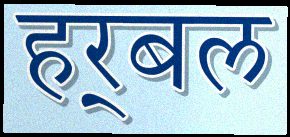
हर्बल